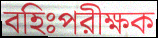
বহিঃপরীক্ষক